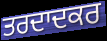
ਤਰਦਾਦਕਰ